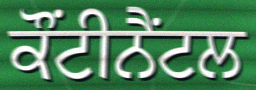
ਕੌਂਟੀਨੈਂਟਲ